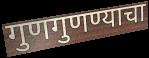
गुणगुणण्याचा